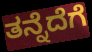
ತನ್ನೆದೆಗೆ